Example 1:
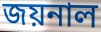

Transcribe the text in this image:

জয়নাল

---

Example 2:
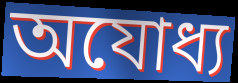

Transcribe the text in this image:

অযোধ্য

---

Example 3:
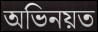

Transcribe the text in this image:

অভিনয়ত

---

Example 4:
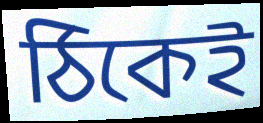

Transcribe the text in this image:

ঠিকেই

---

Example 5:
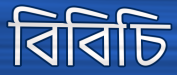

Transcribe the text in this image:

বিবিচি